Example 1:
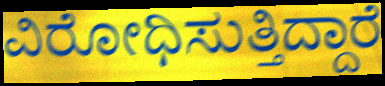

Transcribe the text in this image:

ವಿರೋಧಿಸುತ್ತಿದ್ದಾರೆ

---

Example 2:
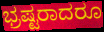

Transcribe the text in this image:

ಭ್ರಷ್ಟರಾದರೂ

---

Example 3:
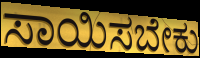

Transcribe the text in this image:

ಸಾಯಿಸಬೇಕು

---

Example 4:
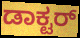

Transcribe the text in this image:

ಡಾಕ್ಟರ್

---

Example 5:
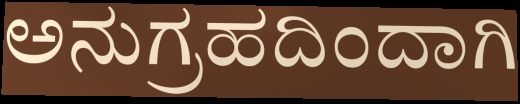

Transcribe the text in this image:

ಅನುಗ್ರಹದಿಂದಾಗಿ